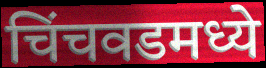
चिंचवडमध्ये